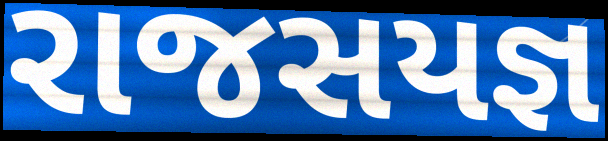
રાજસયજ્ઞ